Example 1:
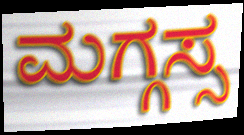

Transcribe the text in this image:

ಮಗ್ಗಸ್ಸ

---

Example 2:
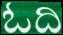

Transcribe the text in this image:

ಓದಿ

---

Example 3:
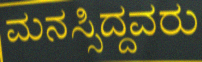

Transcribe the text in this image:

ಮನಸ್ಸಿದ್ದವರು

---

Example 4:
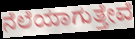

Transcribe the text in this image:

ನೆಲೆಯಾಗುತ್ತೇವೆ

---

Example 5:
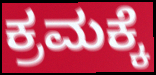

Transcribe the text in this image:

ಕ್ರಮಕ್ಕೆ